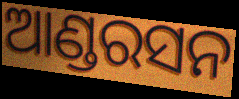
ଆଣ୍ଡରସନ